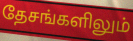
தேசங்களிலும்